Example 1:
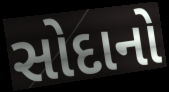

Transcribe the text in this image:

સોદાનો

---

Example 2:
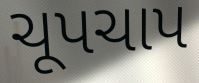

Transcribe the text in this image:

ચૂપચાપ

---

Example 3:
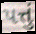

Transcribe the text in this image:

પત્તું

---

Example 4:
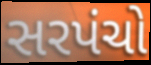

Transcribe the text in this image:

સરપંચો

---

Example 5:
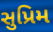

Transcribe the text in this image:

સુપ્રિમ